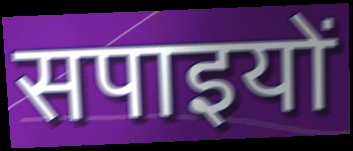
सपाइयों